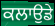
ਕਲਾਉਡੇ